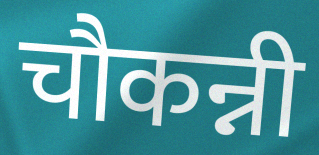
चौकन्नी